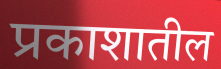
प्रकाशातील